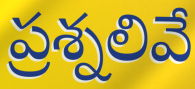
ప్రశ్నలివే